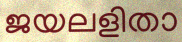
ജയലളിതാ